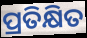
ପ୍ରତିକ୍ଷିତ